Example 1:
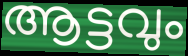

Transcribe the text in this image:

ആട്ടവും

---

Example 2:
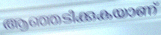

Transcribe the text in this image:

ആഞ്ഞടിക്കുകയാണ്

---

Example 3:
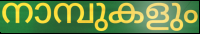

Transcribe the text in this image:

നാമ്പുകളും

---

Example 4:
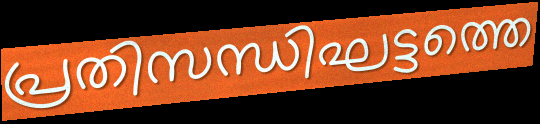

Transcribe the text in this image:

പ്രതിസന്ധിഘട്ടത്തെ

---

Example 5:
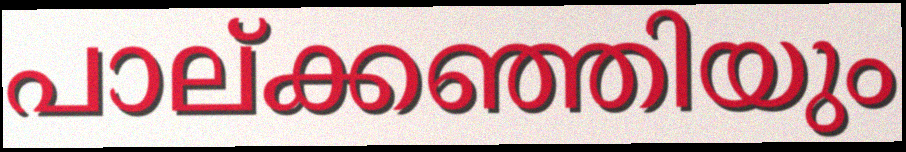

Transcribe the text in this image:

പാല്ക്കഞ്ഞിയും